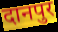
दानपुर